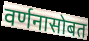
वर्णनासोबत